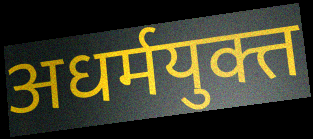
अधर्मयुक्त